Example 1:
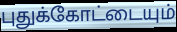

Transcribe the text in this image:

புதுக்கோட்டையும்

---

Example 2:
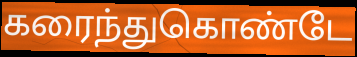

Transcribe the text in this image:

கரைந்துகொண்டே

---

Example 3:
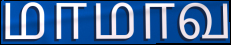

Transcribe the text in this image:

மாமாவ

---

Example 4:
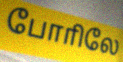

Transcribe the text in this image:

போரிலே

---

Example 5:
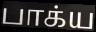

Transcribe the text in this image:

பாக்ய